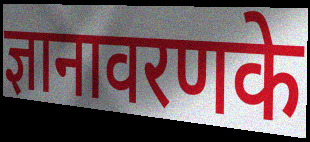
ज्ञानावरणके